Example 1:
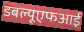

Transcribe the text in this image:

डबल्यूएफआई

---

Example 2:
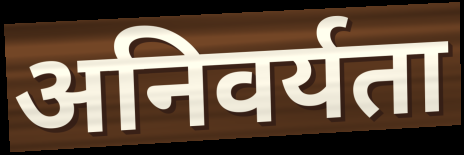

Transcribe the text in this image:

अनिवर्यता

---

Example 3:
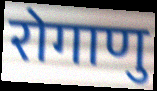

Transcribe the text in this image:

रोगाणु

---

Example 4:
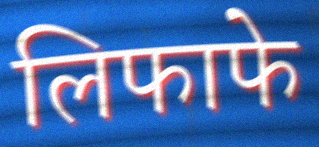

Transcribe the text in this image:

लिफाफे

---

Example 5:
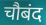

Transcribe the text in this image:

चौबंद